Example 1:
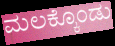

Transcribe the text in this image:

ಮಲಕ್ಕೊಂಡು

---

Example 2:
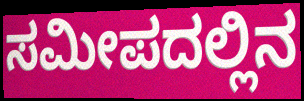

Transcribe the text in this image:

ಸಮೀಪದಲ್ಲಿನ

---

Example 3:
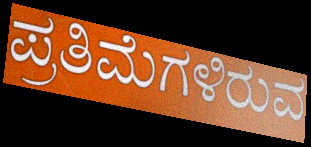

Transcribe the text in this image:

ಪ್ರತಿಮೆಗಳಿರುವ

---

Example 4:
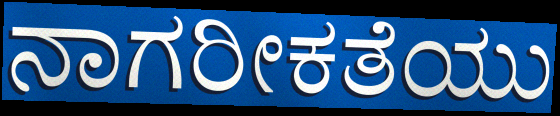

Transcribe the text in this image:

ನಾಗರೀಕತೆಯು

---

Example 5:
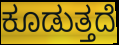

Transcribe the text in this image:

ಕೂಡುತ್ತದೆ